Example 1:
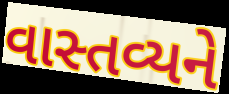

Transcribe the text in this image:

વાસ્તવ્યને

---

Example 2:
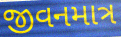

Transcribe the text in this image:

જીવનમાત્ર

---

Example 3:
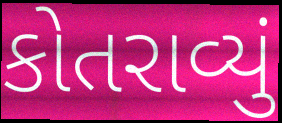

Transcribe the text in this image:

કોતરાવ્યું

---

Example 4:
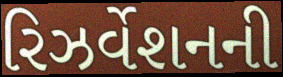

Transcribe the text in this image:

રિઝર્વેશનની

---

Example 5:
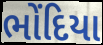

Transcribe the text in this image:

ભોંદિયા